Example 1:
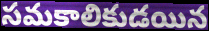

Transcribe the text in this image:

సమకాలికుడయిన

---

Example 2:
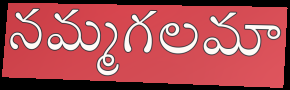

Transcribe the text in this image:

నమ్మగలమా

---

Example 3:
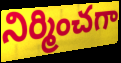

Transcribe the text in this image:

నిర్మించగా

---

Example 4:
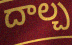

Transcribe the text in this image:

దాల్చ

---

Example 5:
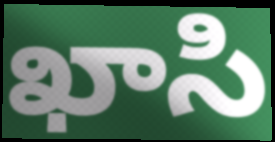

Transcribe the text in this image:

ఖాసి